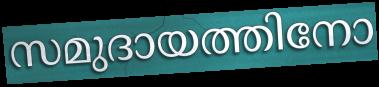
സമുദായത്തിനോ